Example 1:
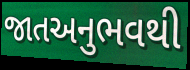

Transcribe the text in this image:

જાતઅનુભવથી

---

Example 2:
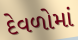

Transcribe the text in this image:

દેવળોમાં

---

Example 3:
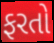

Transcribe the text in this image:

ફરતો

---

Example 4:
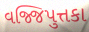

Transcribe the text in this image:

વજ્જિપુત્તકા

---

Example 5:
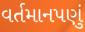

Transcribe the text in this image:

વર્તમાનપણું